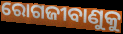
ରୋଗଜୀବାଣୁକୁ